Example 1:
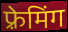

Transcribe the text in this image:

फ़्रेमिंग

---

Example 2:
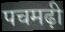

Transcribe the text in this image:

पचमढ़ी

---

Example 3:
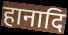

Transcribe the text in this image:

हानादि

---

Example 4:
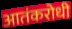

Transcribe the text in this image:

आतंकरोधी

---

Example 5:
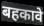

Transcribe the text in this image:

बहकावे